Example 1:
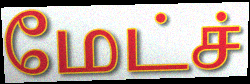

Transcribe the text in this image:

மேட்ச்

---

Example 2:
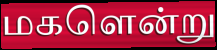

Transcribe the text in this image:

மகளென்று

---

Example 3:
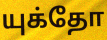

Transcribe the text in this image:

யுக்தோ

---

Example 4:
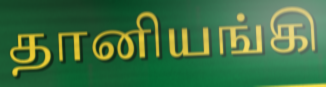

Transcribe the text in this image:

தானியங்கி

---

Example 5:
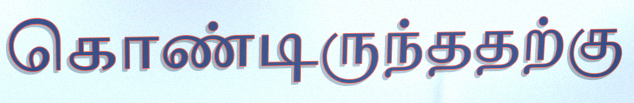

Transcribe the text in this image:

கொண்டிருந்ததற்கு